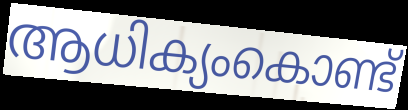
ആധിക്യംകൊണ്ട്